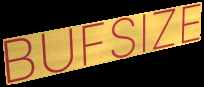
BUFSIZE